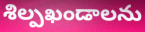
శిల్పఖండాలను